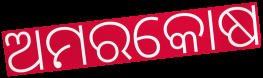
ଅମରକୋଷ